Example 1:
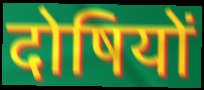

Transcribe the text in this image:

दोषियों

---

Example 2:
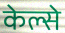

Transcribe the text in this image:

केल्से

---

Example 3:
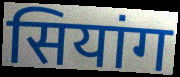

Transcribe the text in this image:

सियांग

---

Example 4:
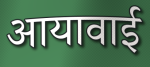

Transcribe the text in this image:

आयावाई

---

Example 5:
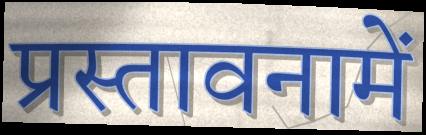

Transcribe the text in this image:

प्रस्तावनामें